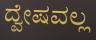
ದ್ವೇಷವಲ್ಲ